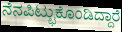
ನೆನಪಿಟ್ಟುಕೊಂಡಿದ್ದಾರೆ